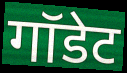
गॉडेट